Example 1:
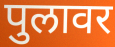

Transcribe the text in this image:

पुलावर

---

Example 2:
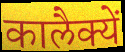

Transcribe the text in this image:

कालैक्यें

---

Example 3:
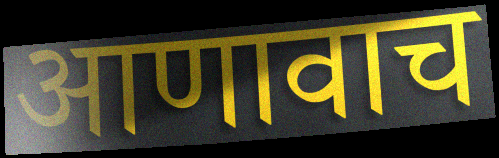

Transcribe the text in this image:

आणावाच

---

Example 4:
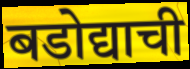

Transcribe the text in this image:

बडोद्याची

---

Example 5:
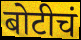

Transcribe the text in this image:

बोटीचं